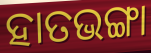
ହାତଭଙ୍ଗା